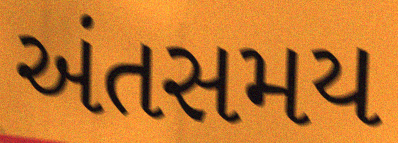
અંતસમય